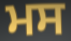
ਮਸ